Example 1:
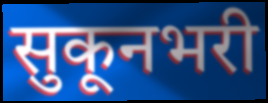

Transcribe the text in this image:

सुकूनभरी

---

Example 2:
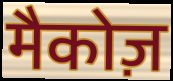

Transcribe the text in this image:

मैकोज़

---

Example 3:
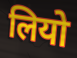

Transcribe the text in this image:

लियो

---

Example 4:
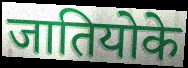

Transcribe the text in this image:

जातियोके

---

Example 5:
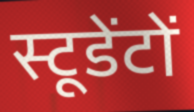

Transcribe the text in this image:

स्टूडेंटों